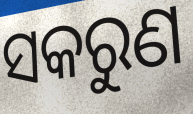
ସକରୁଣ